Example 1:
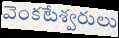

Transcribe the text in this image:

వెంకటేశ్వరులు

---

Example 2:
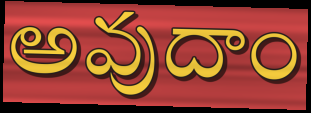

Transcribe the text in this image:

అవుదాం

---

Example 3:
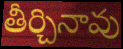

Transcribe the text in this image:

తీర్చినావు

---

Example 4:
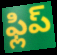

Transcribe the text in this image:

ఫ్లిప్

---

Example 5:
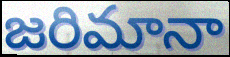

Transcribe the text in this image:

జరిమానా